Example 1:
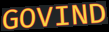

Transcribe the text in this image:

GOVIND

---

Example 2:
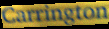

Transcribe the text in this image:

Carrington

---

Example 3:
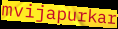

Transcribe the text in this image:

mvijapurkar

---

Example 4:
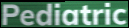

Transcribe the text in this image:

Pediatric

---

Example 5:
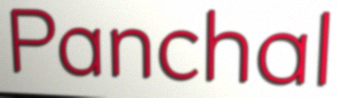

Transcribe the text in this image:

Panchal